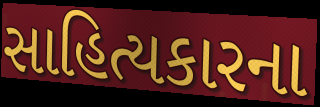
સાહિત્યકારના